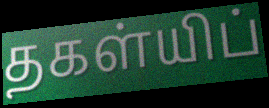
தகள்யிப்